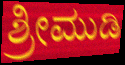
ಶ್ರೀಮುಡಿ